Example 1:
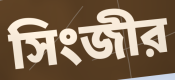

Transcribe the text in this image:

সিংজীর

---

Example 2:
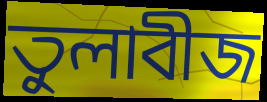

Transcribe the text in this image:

তুলাবীজ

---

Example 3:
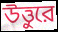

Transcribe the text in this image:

উত্তুরে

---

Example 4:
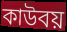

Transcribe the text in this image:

কাউবয়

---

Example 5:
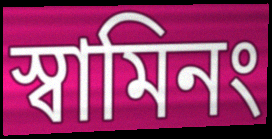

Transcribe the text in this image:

স্বামিনং